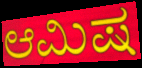
ಆಮಿಷ